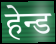
हेन्ड